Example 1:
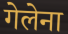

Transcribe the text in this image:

गेलेना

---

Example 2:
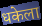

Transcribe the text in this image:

धकेला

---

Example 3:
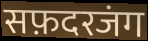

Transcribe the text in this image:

सफ़दरजंग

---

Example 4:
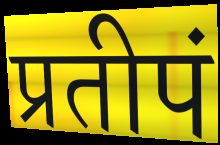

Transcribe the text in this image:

प्रतीपं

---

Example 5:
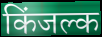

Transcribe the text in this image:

किंजल्क